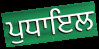
ਪੁਧਾਇਲ